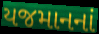
યજમાનનાં